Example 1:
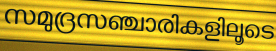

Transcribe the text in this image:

സമുദ്രസഞ്ചാരികളിലൂടെ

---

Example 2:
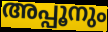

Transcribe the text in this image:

അപ്പൂനും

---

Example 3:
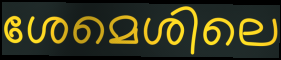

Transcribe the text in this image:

ശേമെശിലെ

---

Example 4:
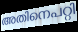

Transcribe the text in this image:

അതിനെപറ്റി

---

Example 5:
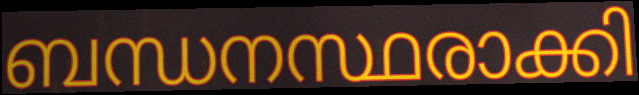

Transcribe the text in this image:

ബന്ധനസ്ഥരാക്കി